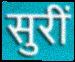
सुरीं